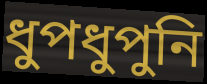
ধুপধুপুনি